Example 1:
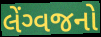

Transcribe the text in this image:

લેંગ્વજનો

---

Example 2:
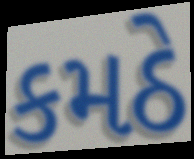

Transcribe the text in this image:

કમઠે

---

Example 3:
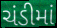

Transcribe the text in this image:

ચંડીમાં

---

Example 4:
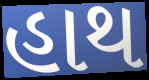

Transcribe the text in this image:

હાથ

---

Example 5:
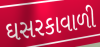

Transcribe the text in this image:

ઘસરકાવાળી